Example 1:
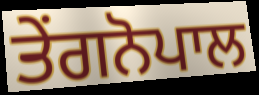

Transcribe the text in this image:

ਤੇਂਗਨੋਪਾਲ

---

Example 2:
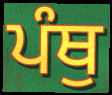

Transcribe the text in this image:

ਪੰਥੁ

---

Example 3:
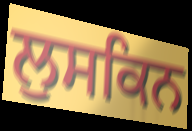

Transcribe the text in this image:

ਲੁਸਕਿਨ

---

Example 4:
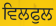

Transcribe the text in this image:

ਵਿਲਫੁਲ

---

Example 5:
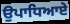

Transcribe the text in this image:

ਉਪਾਧਿਆਏ